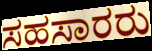
ಸಹಸಾರರು